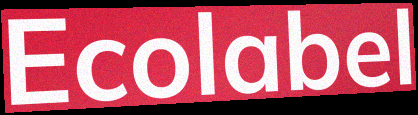
Ecolabel